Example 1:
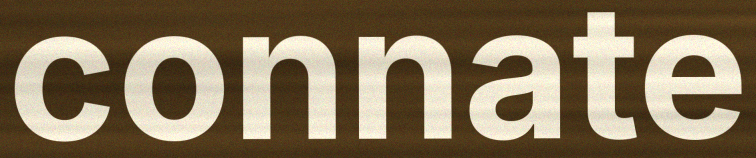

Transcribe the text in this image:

connate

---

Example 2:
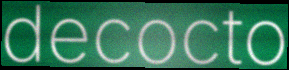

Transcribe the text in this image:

decocto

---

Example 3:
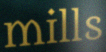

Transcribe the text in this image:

mills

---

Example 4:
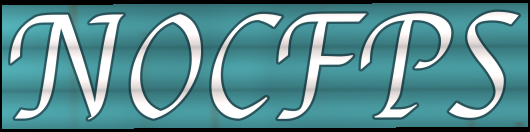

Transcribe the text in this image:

NOCFPS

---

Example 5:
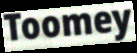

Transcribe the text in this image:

Toomey